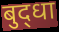
बुद्धा